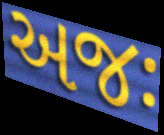
અજઃ